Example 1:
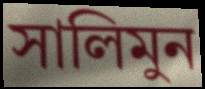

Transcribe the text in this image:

সালিমুন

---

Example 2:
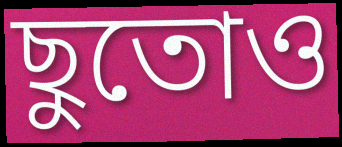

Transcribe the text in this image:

ছুতোও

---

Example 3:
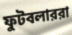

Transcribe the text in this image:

ফুটবলাররা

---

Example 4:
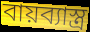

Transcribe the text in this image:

বায়ব্যাস্ত্র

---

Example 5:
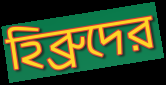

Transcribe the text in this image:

হিব্রুদের